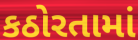
કઠોરતામાં